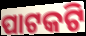
ପାଟକଟି